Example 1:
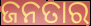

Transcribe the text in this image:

ଜନତାର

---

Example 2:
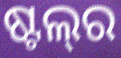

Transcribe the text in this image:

ଷ୍ଟଲ୍‌ର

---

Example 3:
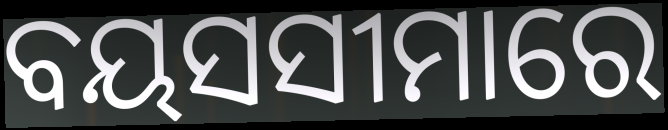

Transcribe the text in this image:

ବୟସସୀମାରେ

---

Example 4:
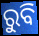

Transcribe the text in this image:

ରୁବି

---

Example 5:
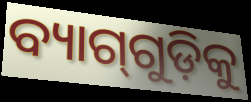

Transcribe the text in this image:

ବ୍ୟାଗ୍‍ଗୁଡ଼ିକୁ